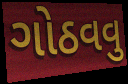
ગોઠવવુ